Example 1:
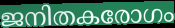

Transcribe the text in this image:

ജനിതകരോഗം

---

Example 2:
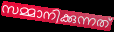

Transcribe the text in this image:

സമ്മാനിക്കുന്നത്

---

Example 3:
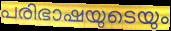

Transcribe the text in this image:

പരിഭാഷയുടെയും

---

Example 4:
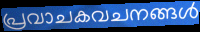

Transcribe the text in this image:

പ്രവാചകവചനങ്ങൾ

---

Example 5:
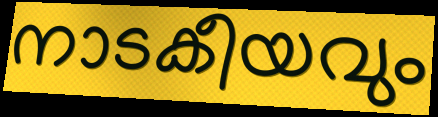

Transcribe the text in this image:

നാടകീയവും